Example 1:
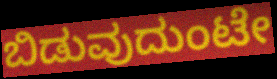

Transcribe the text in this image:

ಬಿಡುವುದುಂಟೇ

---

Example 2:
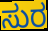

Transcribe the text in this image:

ಸುರ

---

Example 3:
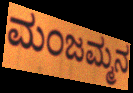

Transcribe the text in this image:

ಮಂಜಮ್ಮನ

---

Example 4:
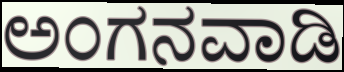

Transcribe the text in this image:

ಅಂಗನವಾಡಿ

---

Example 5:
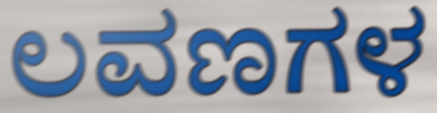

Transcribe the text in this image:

ಲವಣಗಳ